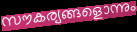
സൗകര്യങ്ങളൊന്നും